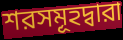
শরসমূহদ্বারা